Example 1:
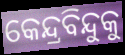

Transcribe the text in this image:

କେନ୍ଦ୍ରବିନ୍ଦୁକୁ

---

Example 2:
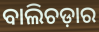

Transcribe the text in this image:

ବାଲିଚଡ଼ାର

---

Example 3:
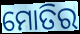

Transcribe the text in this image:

ମୋତିର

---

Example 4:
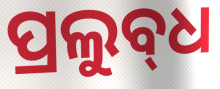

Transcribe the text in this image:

ପ୍ରଲୁବ୍‌ଧ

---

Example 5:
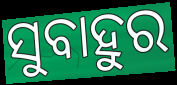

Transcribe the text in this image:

ସୁବାହୁର